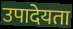
उपादेयता